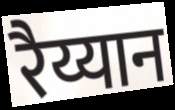
रैय्यान